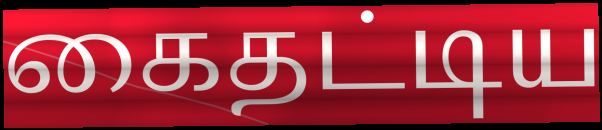
கைதட்டிய